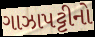
ગાઝાપટ્ટીનો